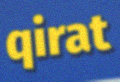
qirat